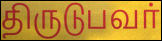
திருடுபவர்